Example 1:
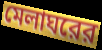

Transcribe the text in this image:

মেলাঘরের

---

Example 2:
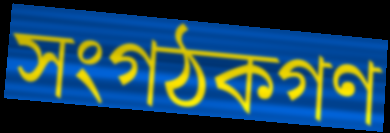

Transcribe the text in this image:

সংগঠকগণ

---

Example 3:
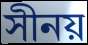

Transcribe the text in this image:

সীনয়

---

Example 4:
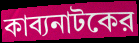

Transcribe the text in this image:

কাব্যনাটকের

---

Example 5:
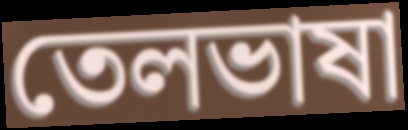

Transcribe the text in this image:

তেলভাষা